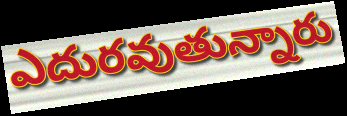
ఎదురవుతున్నారు